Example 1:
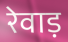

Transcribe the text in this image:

रेवाड़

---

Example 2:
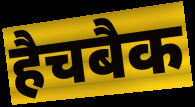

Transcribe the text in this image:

हैचबैक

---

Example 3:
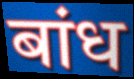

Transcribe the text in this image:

बांध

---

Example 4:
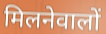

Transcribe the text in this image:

मिलनेवालों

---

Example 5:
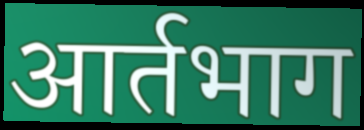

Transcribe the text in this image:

आर्तभाग